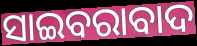
ସାଇବରାବାଦ